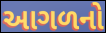
આગળનો